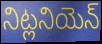
నిట్లనియెన్